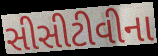
સીસીટીવીના